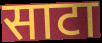
साटा